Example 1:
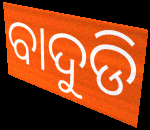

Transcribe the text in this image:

ବାଦୁଡି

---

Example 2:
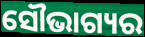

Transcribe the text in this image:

ସୌଭାଗ୍ୟର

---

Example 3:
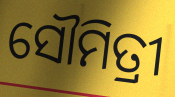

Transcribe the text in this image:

ସୌମିତ୍ରୀ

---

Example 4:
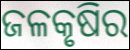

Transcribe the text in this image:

ଜଳକୃଷିର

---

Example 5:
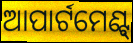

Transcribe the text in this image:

ଆପାର୍ଟମେଣ୍ଟ୍